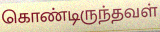
கொண்டிருந்தவள்